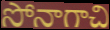
సోనాగాచి